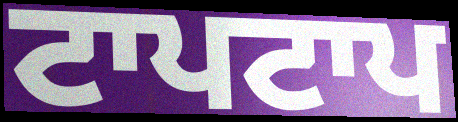
ਟਾਪਟਾਪ